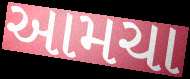
આમચા